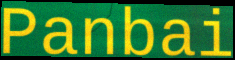
Panbai